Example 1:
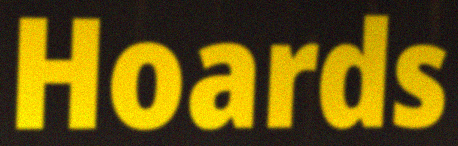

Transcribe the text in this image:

Hoards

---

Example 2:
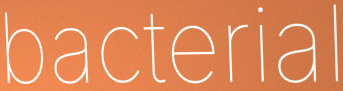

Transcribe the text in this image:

bacterial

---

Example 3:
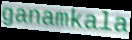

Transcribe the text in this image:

ganamkala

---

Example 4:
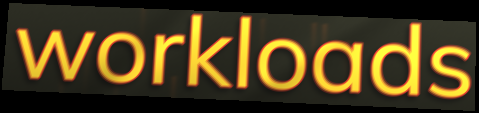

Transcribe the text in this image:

workloads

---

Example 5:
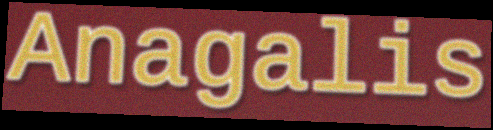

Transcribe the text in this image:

Anagalis